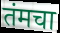
तंमचा